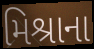
મિશ્રાના